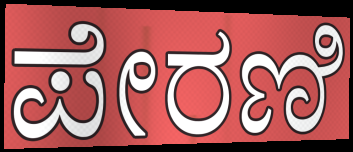
ಪೇರಣಿ